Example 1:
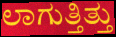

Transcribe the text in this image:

ಲಾಗುತ್ತಿತ್ತು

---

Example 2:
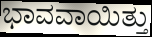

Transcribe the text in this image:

ಭಾವವಾಯಿತ್ತು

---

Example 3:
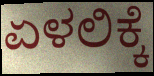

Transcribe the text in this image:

ಏಳಲಿಕ್ಕೆ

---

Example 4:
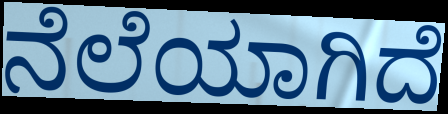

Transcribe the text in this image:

ನೆಲೆಯಾಗಿದೆ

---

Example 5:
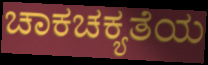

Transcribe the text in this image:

ಚಾಕಚಕ್ಯತೆಯ